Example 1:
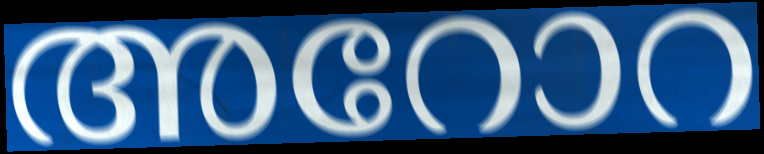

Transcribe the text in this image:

അറോറ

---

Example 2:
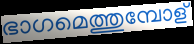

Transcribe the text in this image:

ഭാഗമെത്തുമ്പോള്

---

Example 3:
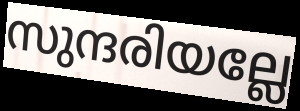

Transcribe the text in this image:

സുന്ദരിയല്ലേ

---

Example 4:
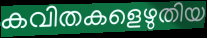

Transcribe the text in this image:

കവിതകളെഴുതിയ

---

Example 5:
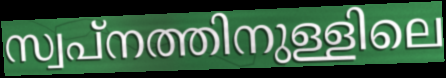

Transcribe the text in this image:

സ്വപ്നത്തിനുള്ളിലെ